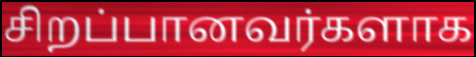
சிறப்பானவர்களாக